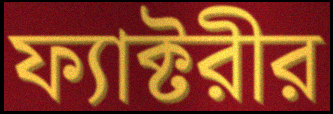
ফ্যাক্টরীর